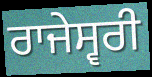
ਰਾਜੇਸ੍ਵਰੀ